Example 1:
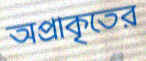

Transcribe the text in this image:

অপ্রাকৃতের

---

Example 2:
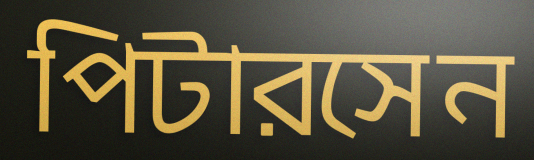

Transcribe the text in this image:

পিটারসেন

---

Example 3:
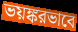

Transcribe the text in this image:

ভয়ঙ্করভাবে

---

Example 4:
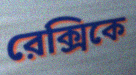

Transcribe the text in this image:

রেক্সিকে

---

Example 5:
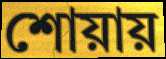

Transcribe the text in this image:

শোয়ায়